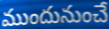
ముందునుంచే